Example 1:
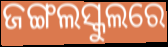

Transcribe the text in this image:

ଜଙ୍ଗଲସ୍କୁଲରେ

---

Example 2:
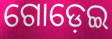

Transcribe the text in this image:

ଗୋଡ଼େଇ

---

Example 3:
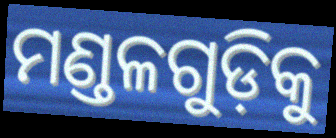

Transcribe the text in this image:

ମଣ୍ଡଳଗୁଡ଼ିକୁ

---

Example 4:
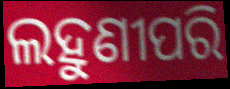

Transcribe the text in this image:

ଲହୁଣୀପରି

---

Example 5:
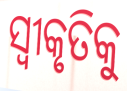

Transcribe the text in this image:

ସ୍ବୀକୃତିକୁ